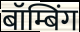
बॉम्बिंग